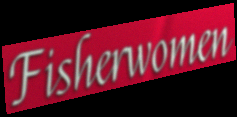
Fisherwomen